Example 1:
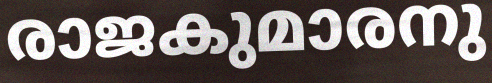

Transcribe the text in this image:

രാജകുമാരനു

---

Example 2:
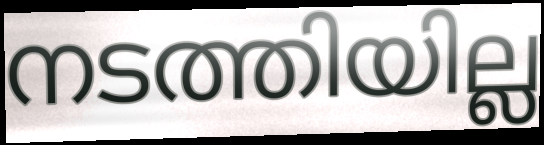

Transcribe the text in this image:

നടത്തിയില്ല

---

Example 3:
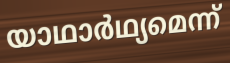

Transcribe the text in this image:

യാഥാർഥ്യമെന്ന്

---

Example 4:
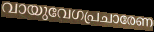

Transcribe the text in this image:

വായുവേഗപ്രചാരേണ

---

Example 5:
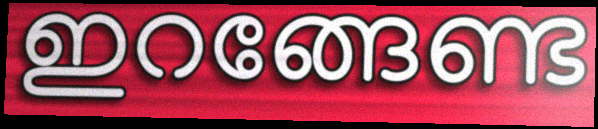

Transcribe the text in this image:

ഇറങ്ങേണ്ട